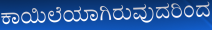
ಕಾಯಿಲೆಯಾಗಿರುವುದರಿಂದ